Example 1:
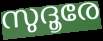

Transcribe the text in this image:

സുദൂരേ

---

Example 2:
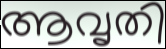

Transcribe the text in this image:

ആവൃതി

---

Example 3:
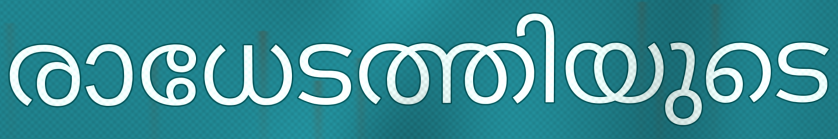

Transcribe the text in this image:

രാധേടത്തിയുടെ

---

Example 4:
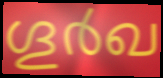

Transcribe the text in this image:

ഗൂർഖ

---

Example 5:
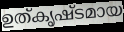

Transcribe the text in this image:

ഉത്കൃഷ്ടമായ